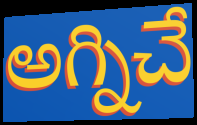
అగ్నిచే